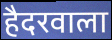
हैदरवाला